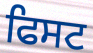
ਫਿਸਟ